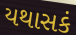
યથાસકં